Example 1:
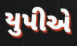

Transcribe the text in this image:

યુપીએ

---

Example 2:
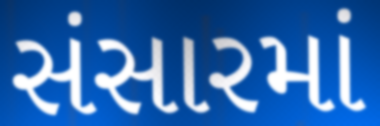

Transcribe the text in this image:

સંસારમાં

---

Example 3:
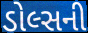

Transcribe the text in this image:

ડોલ્સની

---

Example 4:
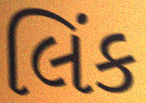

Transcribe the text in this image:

લિંક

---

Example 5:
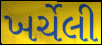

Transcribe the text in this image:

ખર્ચેલી